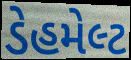
ડેહમેલ્ટ